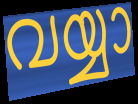
വയ്യാ